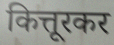
कित्तूरकर